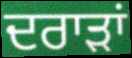
ਦਰਾੜਾਂ